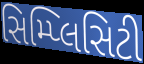
સિમ્પ્લિસિટી